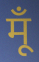
मूँ